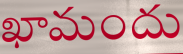
ఖామందు